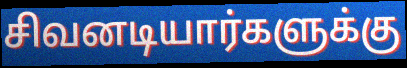
சிவனடியார்களுக்கு